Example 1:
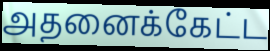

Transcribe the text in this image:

அதனைக்கேட்ட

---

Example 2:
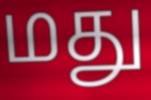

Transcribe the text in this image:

மது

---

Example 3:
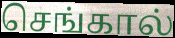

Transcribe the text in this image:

செங்கால்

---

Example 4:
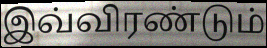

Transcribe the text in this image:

இவ்விரண்டும்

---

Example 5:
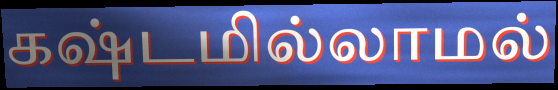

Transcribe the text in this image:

கஷ்டமில்லாமல்